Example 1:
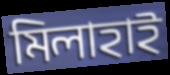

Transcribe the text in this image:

মিলাহাই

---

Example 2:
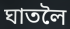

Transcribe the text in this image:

ঘাতলৈ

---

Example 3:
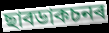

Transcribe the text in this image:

ছাবডাকচনৰ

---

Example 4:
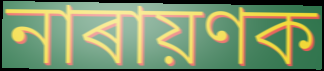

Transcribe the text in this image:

নাৰায়ণক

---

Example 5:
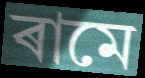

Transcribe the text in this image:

ৰামে